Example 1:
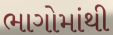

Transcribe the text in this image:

ભાગોમાંથી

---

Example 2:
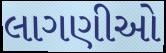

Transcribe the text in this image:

લાગણીઓ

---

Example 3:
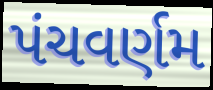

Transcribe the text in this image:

પંચવર્ણમ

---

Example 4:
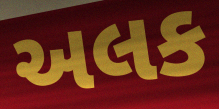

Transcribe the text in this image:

અલક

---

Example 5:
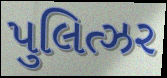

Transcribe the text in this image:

પુલિત્ઝર